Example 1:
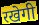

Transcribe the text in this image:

रखेगी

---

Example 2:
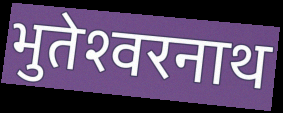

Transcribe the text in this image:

भुतेश्वरनाथ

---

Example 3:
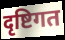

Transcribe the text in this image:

दृष्टिगत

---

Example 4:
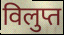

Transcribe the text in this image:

विलुप्त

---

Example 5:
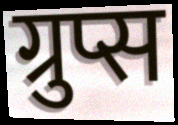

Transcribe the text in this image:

ग्रुप्स